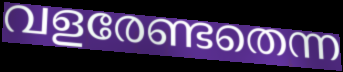
വളരേണ്ടതെന്ന